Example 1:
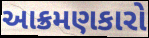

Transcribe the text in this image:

આક્રમણકારો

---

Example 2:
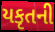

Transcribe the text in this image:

યકૃતની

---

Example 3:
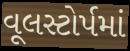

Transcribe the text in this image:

વૂલસ્ટોર્પમાં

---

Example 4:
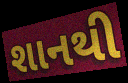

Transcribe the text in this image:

શાનથી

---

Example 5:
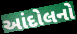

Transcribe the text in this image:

આંદોલનો